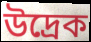
উদ্ৰেক